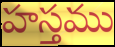
హస్తము